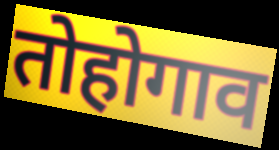
तोहोगाव